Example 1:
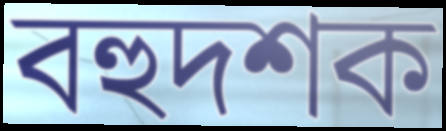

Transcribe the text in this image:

বহুদশক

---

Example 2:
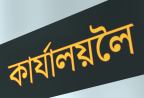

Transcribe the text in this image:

কাৰ্যালয়লৈ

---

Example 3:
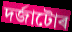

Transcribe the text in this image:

দৰ্জাটোৰ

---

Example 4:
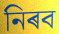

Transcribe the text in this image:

নিৰব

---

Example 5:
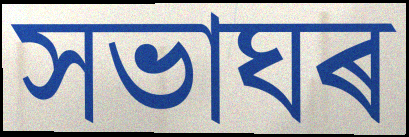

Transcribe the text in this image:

সভাঘৰ